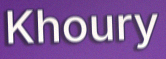
Khoury